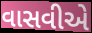
વાસવીએ